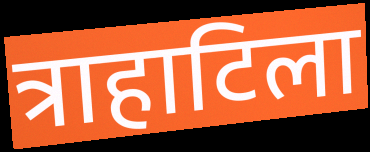
त्राहाटिला